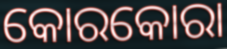
କୋରକୋରା